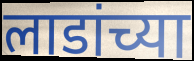
लाडांच्या